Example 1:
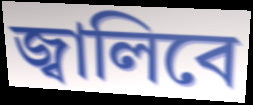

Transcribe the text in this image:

জ্বালিবে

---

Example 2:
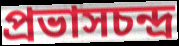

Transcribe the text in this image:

প্রভাসচন্দ্র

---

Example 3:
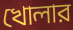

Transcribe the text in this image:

খোলার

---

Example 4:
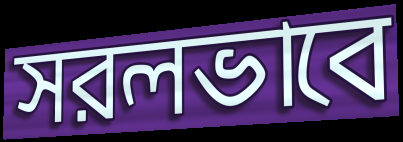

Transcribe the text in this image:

সরলভাবে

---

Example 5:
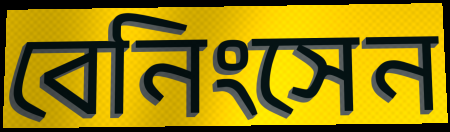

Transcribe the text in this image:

বেনিংসেন